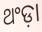
ଥଂଡ଼ା